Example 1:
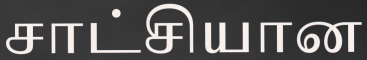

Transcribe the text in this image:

சாட்சியான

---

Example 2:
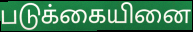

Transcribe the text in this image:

படுக்கையினை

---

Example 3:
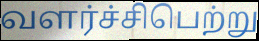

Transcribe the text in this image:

வளர்ச்சிபெற்று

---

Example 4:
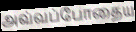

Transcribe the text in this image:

அவ்வப்போதைய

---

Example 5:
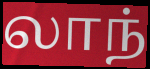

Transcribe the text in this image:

லாந்